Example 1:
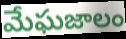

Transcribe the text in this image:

మేఘజాలం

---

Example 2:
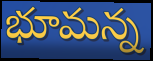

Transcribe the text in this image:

భూమన్న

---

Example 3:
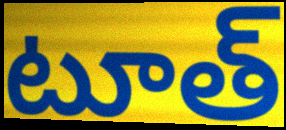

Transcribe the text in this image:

టూత్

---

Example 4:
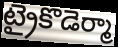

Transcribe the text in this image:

ట్రైకొడెర్మా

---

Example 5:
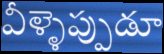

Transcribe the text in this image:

వీళ్ళెప్పుడూ